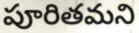
పూరితమని